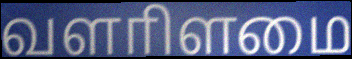
வளரிளமை